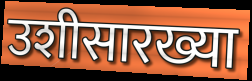
उशीसारख्या